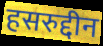
हसरुद्दीन